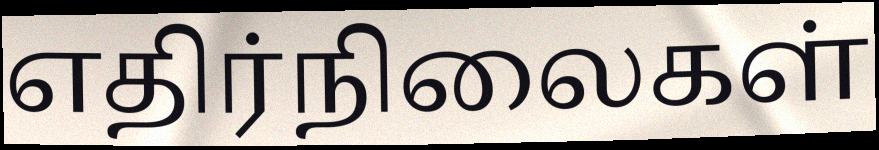
எதிர்நிலைகள்